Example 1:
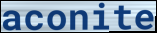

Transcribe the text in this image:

aconite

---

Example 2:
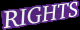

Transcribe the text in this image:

RIGHTS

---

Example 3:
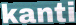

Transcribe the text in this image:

kanti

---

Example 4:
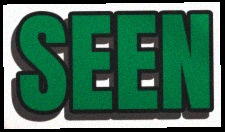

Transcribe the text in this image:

SEEN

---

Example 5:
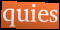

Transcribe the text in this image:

quies